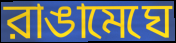
রাঙামেঘে